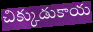
చిక్కుడుకాయ